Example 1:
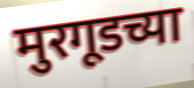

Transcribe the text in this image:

मुरगूडच्या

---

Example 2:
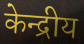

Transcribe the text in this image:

केन्द्रीय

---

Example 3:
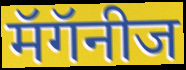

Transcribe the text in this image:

मॅगॅनीज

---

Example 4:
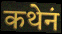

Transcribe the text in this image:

कथेनं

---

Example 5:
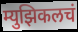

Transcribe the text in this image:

म्युझिकलचं